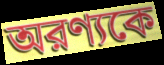
অরণ্যকে